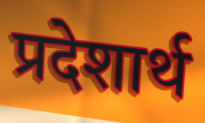
प्रदेशार्थ